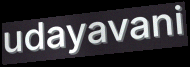
udayavani